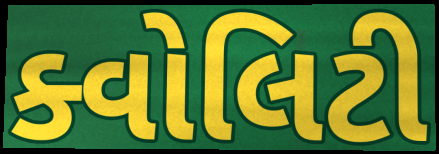
ક્વોલિટી